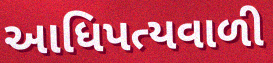
આધિપત્યવાળી